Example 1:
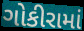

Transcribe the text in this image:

ગોકીરામાં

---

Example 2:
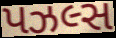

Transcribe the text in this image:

પઝલ્સ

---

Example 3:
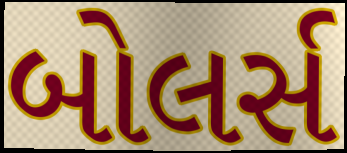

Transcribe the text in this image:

બોલર્સ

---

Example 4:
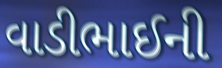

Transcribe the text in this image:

વાડીભાઈની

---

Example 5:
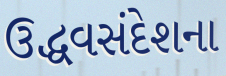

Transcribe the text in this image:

ઉદ્ધવસંદેશના